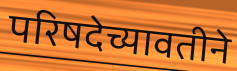
परिषदेच्यावतीने